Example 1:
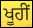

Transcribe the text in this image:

ਖੂਹੀਂ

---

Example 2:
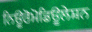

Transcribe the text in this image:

ਨਿਊਰੋਮੋਡਿਊਲੇਸ਼ਨ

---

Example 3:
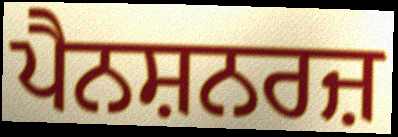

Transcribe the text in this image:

ਪੈਨਸ਼ਨਰਜ਼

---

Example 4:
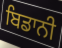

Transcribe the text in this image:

ਬਿਡਾਨੀ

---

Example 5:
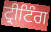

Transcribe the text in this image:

ਟ੍ਰੀਟਿੰਗ